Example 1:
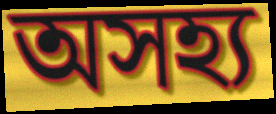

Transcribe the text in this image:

অসহ্য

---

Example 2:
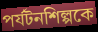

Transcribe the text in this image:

পর্যটনশিল্পকে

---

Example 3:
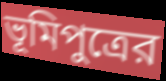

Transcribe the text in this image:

ভূমিপুত্রের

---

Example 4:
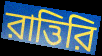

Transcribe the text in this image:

রাত্তিরি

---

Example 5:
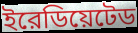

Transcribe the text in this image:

ইরেডিয়েটেড